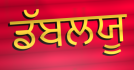
ਡੱਬਲਯੂ